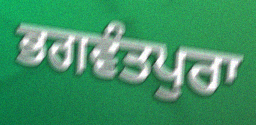
ਭਗਵੰਤਪੁਰਾ